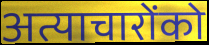
अत्याचारोंको